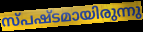
സ്പഷ്ടമായിരുന്നു